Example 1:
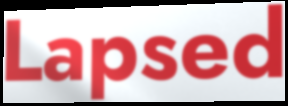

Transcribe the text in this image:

Lapsed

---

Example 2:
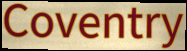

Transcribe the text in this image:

Coventry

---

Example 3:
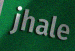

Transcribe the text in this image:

jhale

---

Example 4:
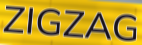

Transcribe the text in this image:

ZIGZAG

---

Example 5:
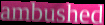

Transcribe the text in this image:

ambushed